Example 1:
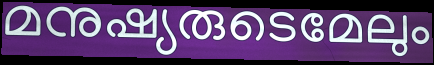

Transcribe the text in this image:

മനുഷ്യരുടെമേലും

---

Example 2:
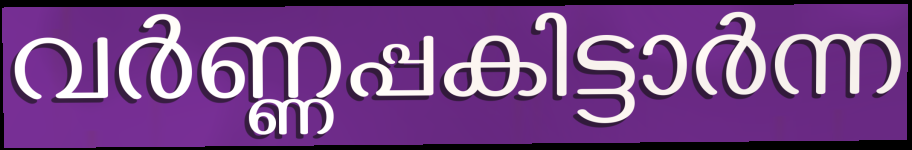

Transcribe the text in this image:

വർണ്ണപ്പകിട്ടാർന്ന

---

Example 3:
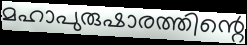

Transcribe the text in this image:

മഹാപുരുഷാരത്തിന്റെ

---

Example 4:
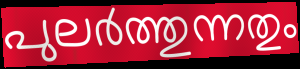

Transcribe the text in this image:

പുലർത്തുന്നതും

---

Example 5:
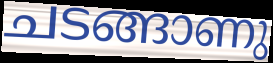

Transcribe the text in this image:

ചടങ്ങാണു